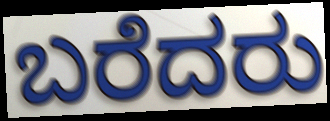
ಬರೆದರು